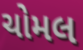
ચોમલ